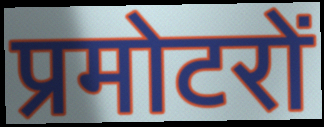
प्रमोटरों